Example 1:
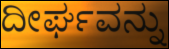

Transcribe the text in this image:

ದೀರ್ಘವನ್ನು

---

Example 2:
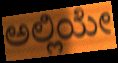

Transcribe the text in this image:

ಅಲ್ಲಿಯೇ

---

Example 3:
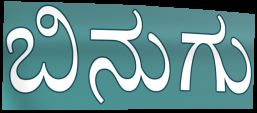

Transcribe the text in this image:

ಬಿನುಗು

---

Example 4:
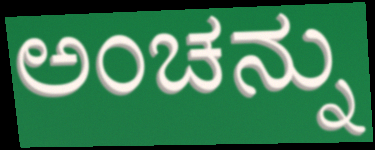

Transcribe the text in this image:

ಅಂಚನ್ನು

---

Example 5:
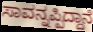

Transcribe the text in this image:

ಸಾವನ್ನಪ್ಪಿದ್ದಾನೆ